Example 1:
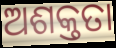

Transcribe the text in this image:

ଅଶକ୍ତତା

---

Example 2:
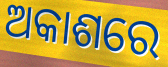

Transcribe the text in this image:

ଅକାଶରେ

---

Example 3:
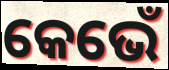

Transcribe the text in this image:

କେଭେଁ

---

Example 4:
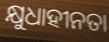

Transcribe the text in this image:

କ୍ଷୁଧାହୀନତା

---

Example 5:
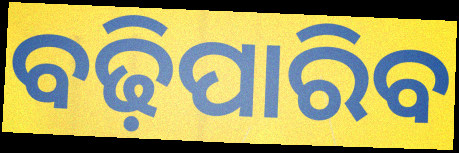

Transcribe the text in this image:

ବଢ଼ିପାରିବ